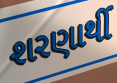
શરણાર્થી